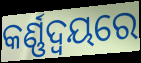
କର୍ଣ୍ଣଦ୍ୱୟରେ